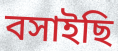
বসাইছি